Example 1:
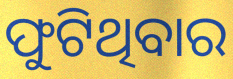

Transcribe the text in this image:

ଫୁଟିଥିବାର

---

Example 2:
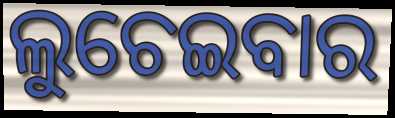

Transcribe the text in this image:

ଲୁଚେଇବାର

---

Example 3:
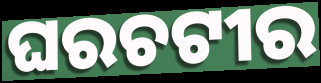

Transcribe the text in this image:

ଘରଚଟୀର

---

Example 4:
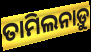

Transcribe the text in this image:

ତାମିଲନାଡ଼ୁ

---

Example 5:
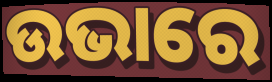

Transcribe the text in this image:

ଉଭାରେ